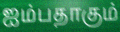
ஐம்பதாகும்